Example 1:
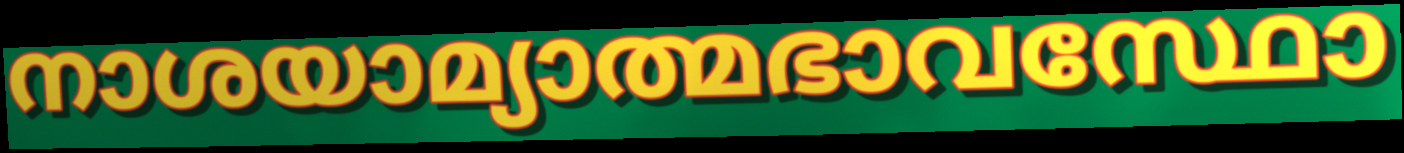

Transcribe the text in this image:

നാശയാമ്യാത്മഭാവസ്ഥോ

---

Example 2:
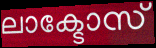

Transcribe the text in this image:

ലാക്ടോസ്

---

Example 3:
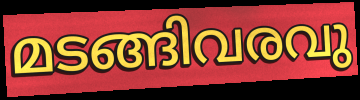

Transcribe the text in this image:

മടങ്ങിവരവു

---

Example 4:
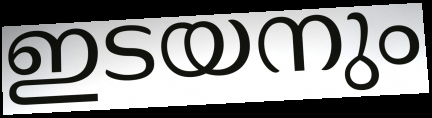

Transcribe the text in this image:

ഇടയനും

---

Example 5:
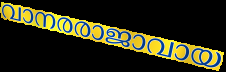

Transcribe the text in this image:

വാനരരാജാവായ